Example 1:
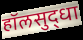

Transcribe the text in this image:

हॉलसुद्धा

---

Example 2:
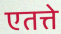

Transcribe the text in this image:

एतत्ते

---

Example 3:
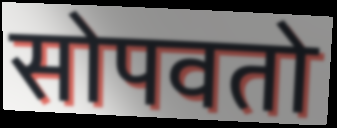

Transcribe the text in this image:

सोपवतो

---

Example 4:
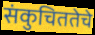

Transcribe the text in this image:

संकुचिततेचे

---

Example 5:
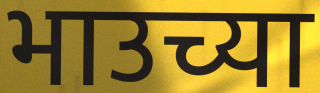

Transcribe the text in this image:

भाउच्या